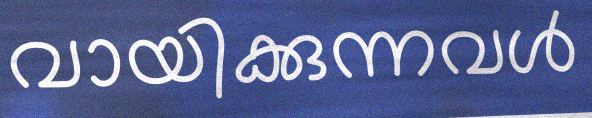
വായിക്കുന്നവൾ